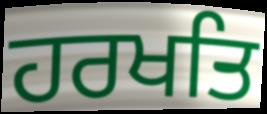
ਹਰਖਤਿ